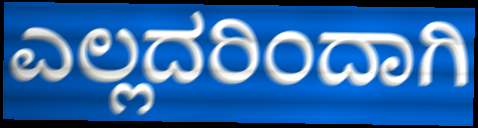
ಎಲ್ಲದರಿಂದಾಗಿ